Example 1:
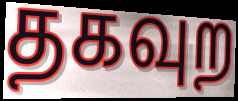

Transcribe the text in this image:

தகவுற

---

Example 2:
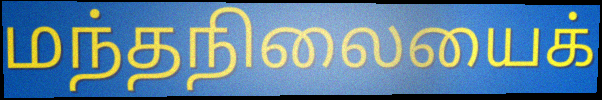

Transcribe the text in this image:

மந்தநிலையைக்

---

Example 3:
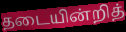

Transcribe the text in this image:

தடையின்றித்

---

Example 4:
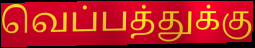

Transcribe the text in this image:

வெப்பத்துக்கு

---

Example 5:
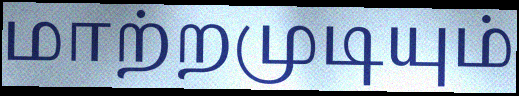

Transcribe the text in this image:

மாற்றமுடியும்